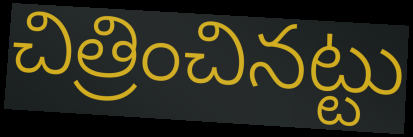
చిత్రించినట్టు